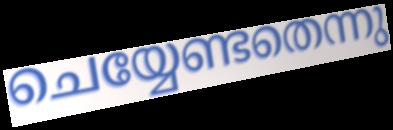
ചെയ്യേണ്ടതെന്നു